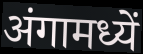
अंगामध्यें